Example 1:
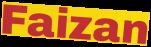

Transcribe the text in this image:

Faizan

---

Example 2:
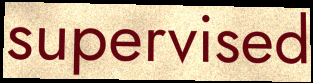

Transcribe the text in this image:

supervised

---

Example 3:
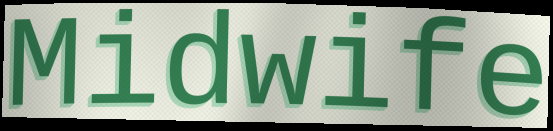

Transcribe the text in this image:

Midwife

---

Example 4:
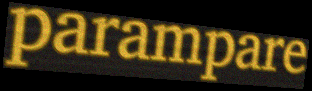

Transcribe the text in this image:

parampare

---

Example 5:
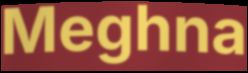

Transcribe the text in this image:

Meghna